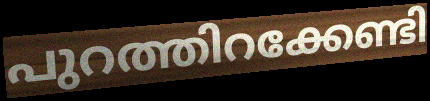
പുറത്തിറക്കേണ്ടി